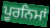
ਪੂਰਨਿਮਾਂ